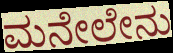
ಮನೇಲೇನು